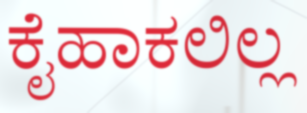
ಕೈಹಾಕಲಿಲ್ಲ